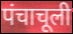
पंचाचूली